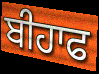
ਬੀਹਾਫ